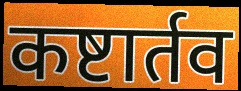
कष्टार्तव